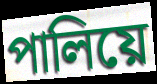
পালিয়ে